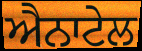
ਐਨਾਟੇਲ